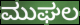
ಮುಘಲ